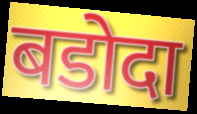
बडोदा